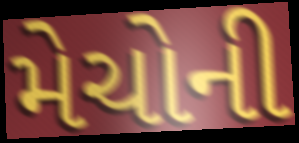
મેચોની